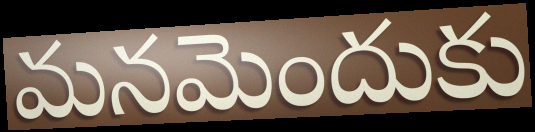
మనమెందుకు